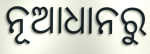
ନୂଆଧାନରୁ